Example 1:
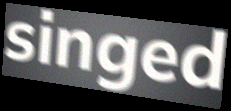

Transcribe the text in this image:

singed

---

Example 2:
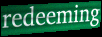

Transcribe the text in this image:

redeeming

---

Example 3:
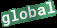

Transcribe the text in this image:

global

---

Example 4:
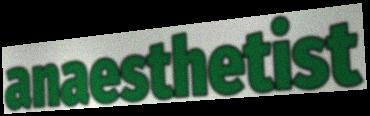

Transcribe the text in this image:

anaesthetist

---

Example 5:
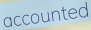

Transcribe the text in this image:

accounted